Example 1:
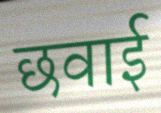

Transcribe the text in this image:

छवाई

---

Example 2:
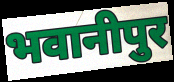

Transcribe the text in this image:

भवानीपुर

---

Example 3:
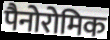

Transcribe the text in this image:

पैनोरोमिक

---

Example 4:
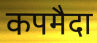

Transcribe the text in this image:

कपमैदा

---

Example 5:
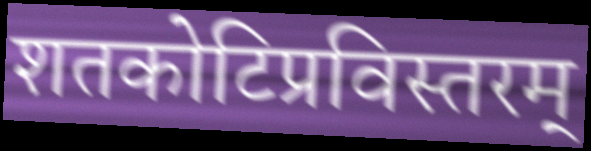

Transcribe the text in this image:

शतकोटिप्रविस्तरम्